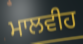
ਮਾਲਵੀਹ